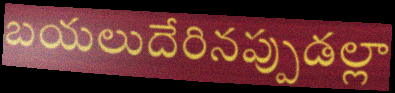
బయలుదేరినప్పుడల్లా